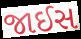
જાઈસ